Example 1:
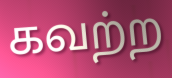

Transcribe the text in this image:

கவற்ற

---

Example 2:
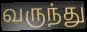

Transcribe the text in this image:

வருந்து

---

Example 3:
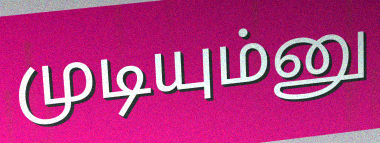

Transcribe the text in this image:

முடியும்னு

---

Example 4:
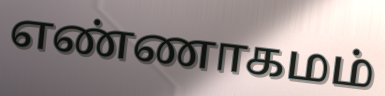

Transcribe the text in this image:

எண்ணாகமம்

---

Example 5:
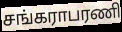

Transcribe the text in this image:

சங்கராபரணி